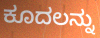
ಕೂದಲನ್ನು